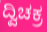
ದ್ವಿಚಕ್ರ